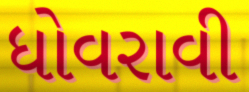
ધોવરાવી